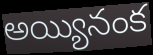
అయ్యినంక